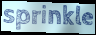
sprinkle